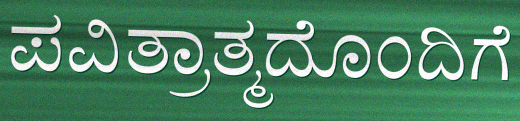
ಪವಿತ್ರಾತ್ಮದೊಂದಿಗೆ